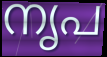
നൃപ